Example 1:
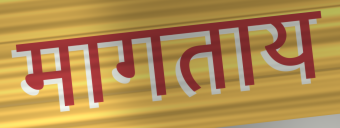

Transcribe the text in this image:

मागताय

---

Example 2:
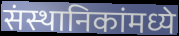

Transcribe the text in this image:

संस्थानिकांमध्ये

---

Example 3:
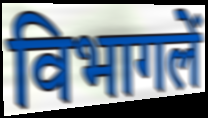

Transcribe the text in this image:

विभागलें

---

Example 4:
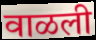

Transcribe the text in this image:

वाळली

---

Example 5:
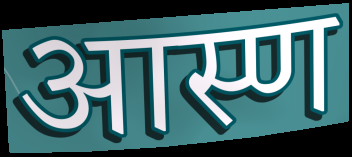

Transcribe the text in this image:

आस्ण